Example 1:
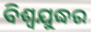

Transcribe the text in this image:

ବିଶ୍ୱଯୁଦ୍ଧର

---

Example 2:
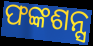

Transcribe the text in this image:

ଫଙ୍କଶନ୍ସ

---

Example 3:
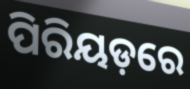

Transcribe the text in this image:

ପିରିୟଡ଼ରେ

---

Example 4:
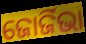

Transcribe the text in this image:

ଜୋର୍ଜିଭା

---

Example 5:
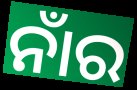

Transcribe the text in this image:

ନାଁର